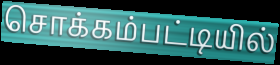
சொக்கம்பட்டியில்